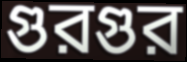
গুরগুর